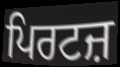
ਪਿਰਟਜ਼